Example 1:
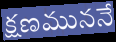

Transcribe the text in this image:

క్షణముననే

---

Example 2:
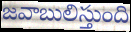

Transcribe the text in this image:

జవాబులిస్తుంది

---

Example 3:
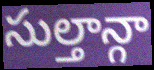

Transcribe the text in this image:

సుల్తాన్గా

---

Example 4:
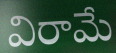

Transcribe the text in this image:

విరామే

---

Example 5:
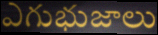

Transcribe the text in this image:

ఎగుభుజాలు